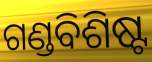
ଗଣ୍ଡବିଶିଷ୍ଟ